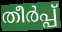
തീർപ്പ്